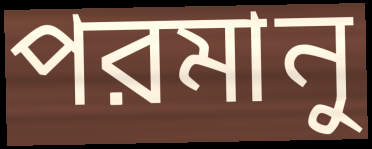
পরমানু